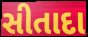
સીતાદા